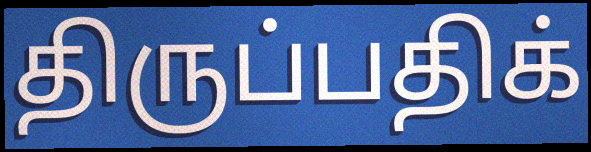
திருப்பதிக்